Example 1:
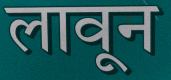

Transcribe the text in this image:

लावून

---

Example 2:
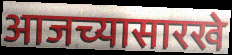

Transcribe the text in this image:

आजच्यासारखे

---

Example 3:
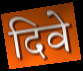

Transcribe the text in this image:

दिवे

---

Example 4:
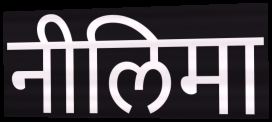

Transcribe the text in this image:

नीलिमा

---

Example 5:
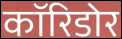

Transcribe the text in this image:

कॉरिडोर